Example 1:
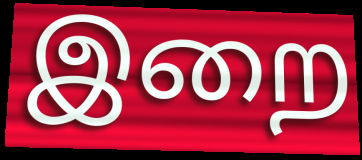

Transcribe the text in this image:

இறை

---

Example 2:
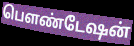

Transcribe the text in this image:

பௌண்டேஷன்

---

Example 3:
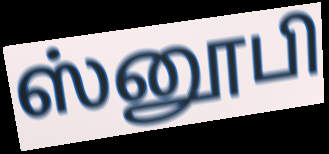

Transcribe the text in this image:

ஸ்னூபி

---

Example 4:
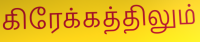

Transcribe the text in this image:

கிரேக்கத்திலும்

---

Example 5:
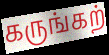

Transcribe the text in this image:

கருங்கற்